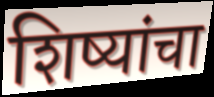
शिष्यांचा